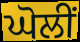
ਘੋਲੀਂ